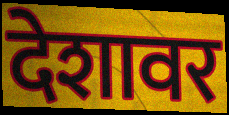
देशावर